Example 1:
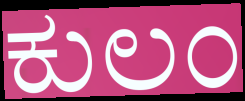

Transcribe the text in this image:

ಕುಲಂ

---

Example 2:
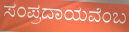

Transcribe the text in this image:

ಸಂಪ್ರದಾಯವೆಂಬ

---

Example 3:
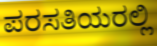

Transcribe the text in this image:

ಪರಸತಿಯರಲ್ಲಿ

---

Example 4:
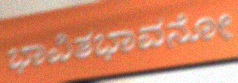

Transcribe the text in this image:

ಭಾವಿತಭಾವನೋ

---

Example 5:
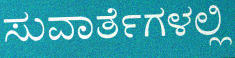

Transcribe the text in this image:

ಸುವಾರ್ತೆಗಳಲ್ಲಿ